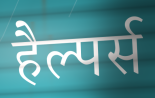
हैल्पर्स